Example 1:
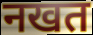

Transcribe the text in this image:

नखत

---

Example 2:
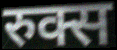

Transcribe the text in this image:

रुक्स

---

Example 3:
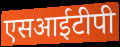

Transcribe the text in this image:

एसआईटीपी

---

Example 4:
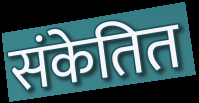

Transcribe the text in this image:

संकेतित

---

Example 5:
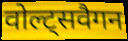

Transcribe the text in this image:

वोल्ट्सवैगन